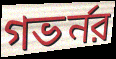
গভর্নর